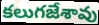
కలుగజేశావు